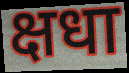
क्षधा